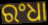
ରଂଧା